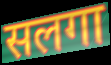
सलगा